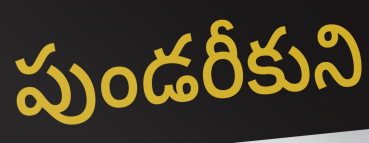
పుండరీకుని